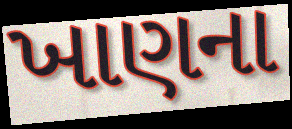
ખાણના